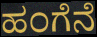
ಹಂಗೆನೆ